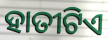
ହାତୀଟିଏ